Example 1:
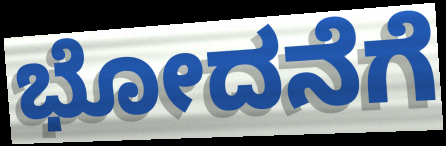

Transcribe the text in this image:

ಭೋದನೆಗೆ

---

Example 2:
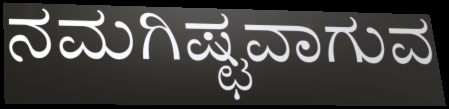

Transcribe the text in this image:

ನಮಗಿಷ್ಟವಾಗುವ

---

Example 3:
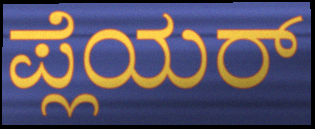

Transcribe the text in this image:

ಪ್ಲೆಯರ್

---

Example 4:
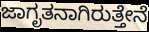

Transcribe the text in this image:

ಜಾಗೃತನಾಗಿರುತ್ತೇನೆ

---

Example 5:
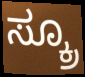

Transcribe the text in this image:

ಸ್ಕ್ರೂ